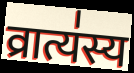
व्रात्य॑स्य